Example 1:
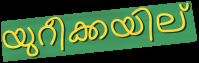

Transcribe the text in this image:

യുറീക്കയില്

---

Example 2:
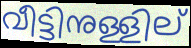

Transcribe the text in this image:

വീട്ടിനുള്ളില്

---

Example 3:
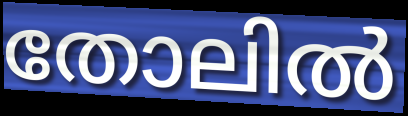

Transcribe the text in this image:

തോലിൽ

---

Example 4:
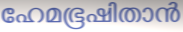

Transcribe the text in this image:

ഹേമഭൂഷിതാൻ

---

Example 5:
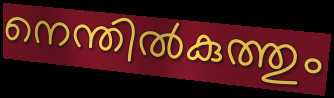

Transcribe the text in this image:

നെന്തിൽകുത്തും